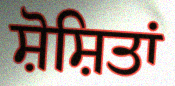
ਸ਼ੋਸ਼ਿਤਾਂ